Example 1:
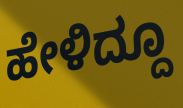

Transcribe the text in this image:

ಹೇಳಿದ್ದೂ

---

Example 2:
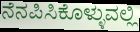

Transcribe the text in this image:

ನೆನಪಿಸಿಕೊಳ್ಳುವಲ್ಲಿ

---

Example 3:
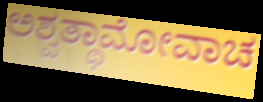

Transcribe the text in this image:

ಅಶ್ವತ್ಥಾಮೋವಾಚ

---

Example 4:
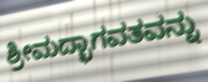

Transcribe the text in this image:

ಶ್ರೀಮದ್ಭಾಗವತವನ್ನು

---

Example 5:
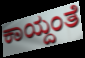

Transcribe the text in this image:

ಕಾಯ್ದಂತೆ